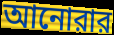
আনোরার